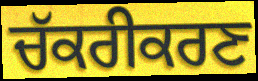
ਚੱਕਰੀਕਰਣ